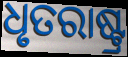
ଧୃତରାଷ୍ଟ୍ର